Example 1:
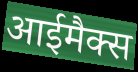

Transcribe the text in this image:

आईमैक्स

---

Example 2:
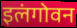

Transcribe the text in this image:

इलंगोवन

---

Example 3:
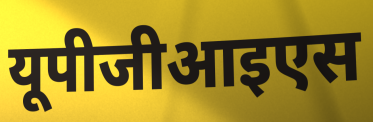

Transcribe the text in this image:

यूपीजीआइएस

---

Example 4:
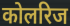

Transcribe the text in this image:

कोलरिज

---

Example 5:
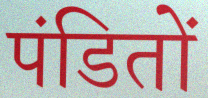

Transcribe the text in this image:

पंडितों